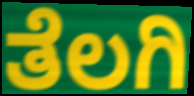
ತೆಲಗಿ